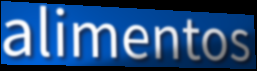
alimentos